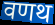
वणथ